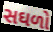
સઘળો